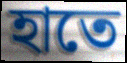
হাতে